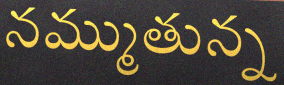
నమ్ముతున్న